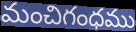
మంచిగంధము